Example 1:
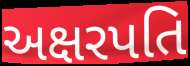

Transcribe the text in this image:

અક્ષરપતિ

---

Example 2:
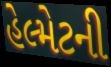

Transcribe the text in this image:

હેલ્મેટની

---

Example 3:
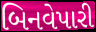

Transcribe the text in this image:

બિનવેપારી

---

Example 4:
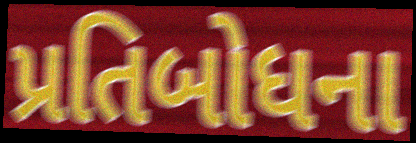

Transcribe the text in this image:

પ્રતિબોધના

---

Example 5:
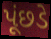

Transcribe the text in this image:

પૂંછડે